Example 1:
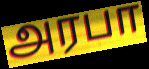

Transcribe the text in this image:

அரபா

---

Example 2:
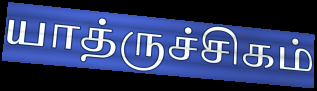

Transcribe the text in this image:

யாத்ருச்சிகம்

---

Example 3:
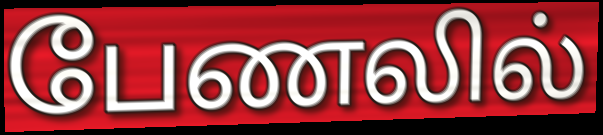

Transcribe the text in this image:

பேணலில்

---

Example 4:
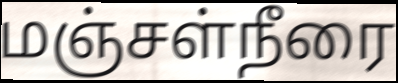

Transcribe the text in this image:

மஞ்சள்நீரை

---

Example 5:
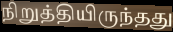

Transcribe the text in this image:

நிறுத்தியிருந்தது